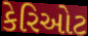
કેરિઓટ